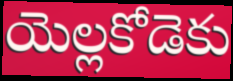
యెల్లకోడెకు